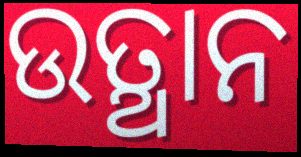
ଉତ୍ଥାନ